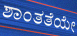
ಶಾಂತತೆಯೇ